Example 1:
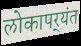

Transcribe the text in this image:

लोकापर्यंत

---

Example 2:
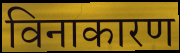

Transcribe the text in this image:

विनाकारण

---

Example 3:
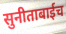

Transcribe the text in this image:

सुनीताबाईच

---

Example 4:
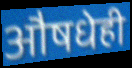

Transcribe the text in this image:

औषधेही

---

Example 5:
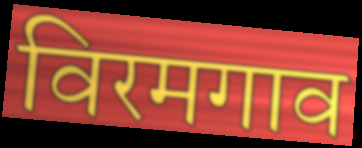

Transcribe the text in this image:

विरमगाव